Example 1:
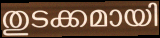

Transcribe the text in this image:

തുടക്കമായി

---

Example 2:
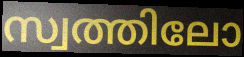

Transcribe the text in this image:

സ്വത്തിലോ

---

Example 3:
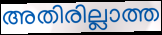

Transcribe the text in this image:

അതിരില്ലാത്ത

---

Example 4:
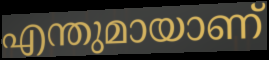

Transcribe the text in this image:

എന്തുമായാണ്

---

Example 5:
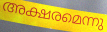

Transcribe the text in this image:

അക്ഷരമെന്നു